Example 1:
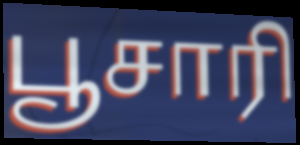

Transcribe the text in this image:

பூசாரி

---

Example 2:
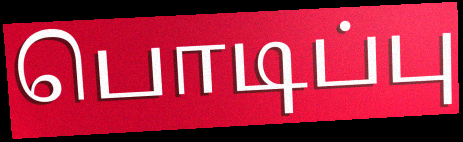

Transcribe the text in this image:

பொடிப்பு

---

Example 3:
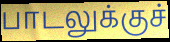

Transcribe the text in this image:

பாடலுக்குச்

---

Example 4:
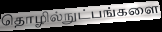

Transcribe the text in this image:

தொழில்நுட்பங்களை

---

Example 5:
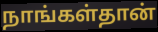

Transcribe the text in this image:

நாங்கள்தான்